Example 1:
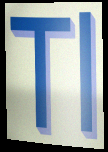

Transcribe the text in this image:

Tl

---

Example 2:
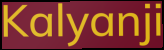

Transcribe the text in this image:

Kalyanji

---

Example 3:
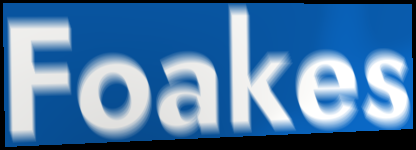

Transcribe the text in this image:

Foakes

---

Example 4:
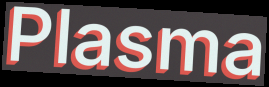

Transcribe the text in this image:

Plasma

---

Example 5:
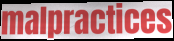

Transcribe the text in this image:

malpractices